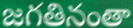
జగతినంతా